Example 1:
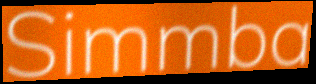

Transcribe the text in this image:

Simmba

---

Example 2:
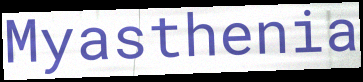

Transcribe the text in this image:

Myasthenia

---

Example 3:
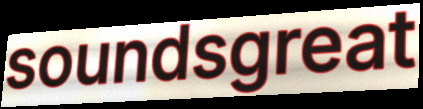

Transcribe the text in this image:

soundsgreat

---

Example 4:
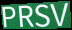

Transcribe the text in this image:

PRSV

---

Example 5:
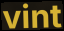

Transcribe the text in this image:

vint